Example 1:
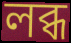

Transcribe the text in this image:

লব্ধ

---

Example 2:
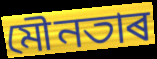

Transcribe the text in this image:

মৌনতাৰ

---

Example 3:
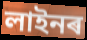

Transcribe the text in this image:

লাইনৰ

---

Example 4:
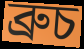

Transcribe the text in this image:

ব্ৰুচ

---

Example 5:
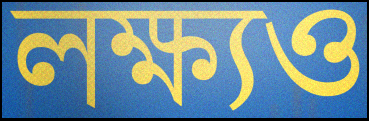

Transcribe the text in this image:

লক্ষ্যও